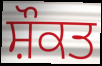
ਸ਼ੌਕਤ